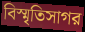
বিস্মৃতিসাগর